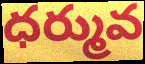
ధర్మువ